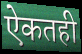
ऐकतही